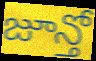
జూన్తో